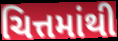
ચિત્તમાંથી